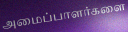
அமைப்பாளர்களை